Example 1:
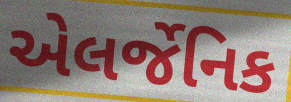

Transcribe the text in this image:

એલર્જેનિક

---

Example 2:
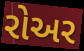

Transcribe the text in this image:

રોઅર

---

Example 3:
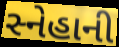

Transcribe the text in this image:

સ્નેહાની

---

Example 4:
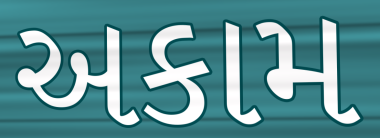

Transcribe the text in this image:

અકામ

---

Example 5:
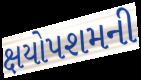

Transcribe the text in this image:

ક્ષયોપશમની